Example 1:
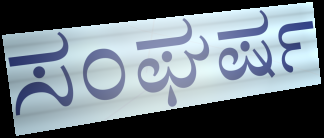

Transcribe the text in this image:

ಸಂಘರ್ಷ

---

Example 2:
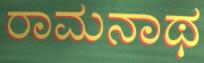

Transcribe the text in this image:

ರಾಮನಾಥ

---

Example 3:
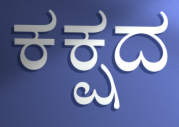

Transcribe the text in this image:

ಕಕ್ಷದ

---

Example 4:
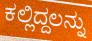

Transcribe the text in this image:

ಕಲ್ಲಿದ್ದಲನ್ನು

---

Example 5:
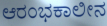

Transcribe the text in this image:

ಆರಂಭಕಾಲೀನ